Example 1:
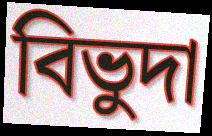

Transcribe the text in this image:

বিভুদা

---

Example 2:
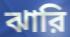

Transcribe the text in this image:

ঝারি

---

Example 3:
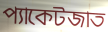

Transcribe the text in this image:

প্যাকেটজাত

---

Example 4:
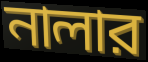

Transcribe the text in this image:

নালার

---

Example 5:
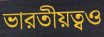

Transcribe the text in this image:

ভারতীয়ত্বও